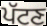
ਪੱਟਣ